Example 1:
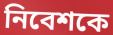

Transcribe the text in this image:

নিবেশকে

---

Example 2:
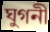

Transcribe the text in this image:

ঘুগনী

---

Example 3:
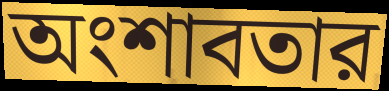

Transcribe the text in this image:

অংশাবতার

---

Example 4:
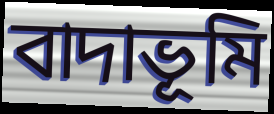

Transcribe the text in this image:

বাদাভূমি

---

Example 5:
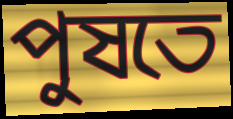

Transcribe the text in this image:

পুষতে